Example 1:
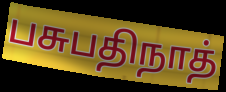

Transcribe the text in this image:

பசுபதிநாத்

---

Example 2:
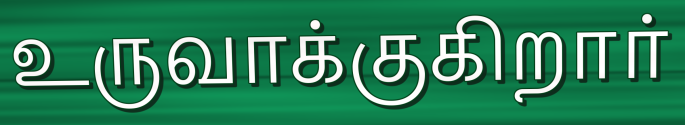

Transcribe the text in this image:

உருவாக்குகிறார்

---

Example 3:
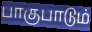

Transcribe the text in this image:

பாகுபாடும்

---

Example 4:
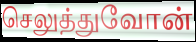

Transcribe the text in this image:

செலுத்துவோன்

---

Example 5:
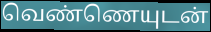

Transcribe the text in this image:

வெண்ணெயுடன்